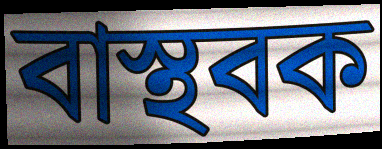
বাস্থবক